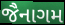
જૈનાગમ